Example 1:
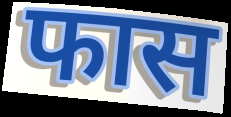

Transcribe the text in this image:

फास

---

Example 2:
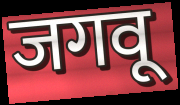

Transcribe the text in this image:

जगवू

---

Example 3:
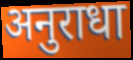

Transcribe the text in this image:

अनुराधा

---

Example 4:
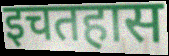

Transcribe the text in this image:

इचतहास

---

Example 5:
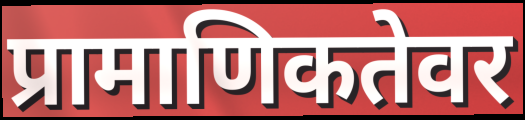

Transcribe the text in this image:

प्रामाणिकतेवर